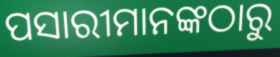
ପସାରୀମାନଙ୍କଠାରୁ